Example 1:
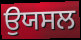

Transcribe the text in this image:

ਉਯਸਲ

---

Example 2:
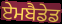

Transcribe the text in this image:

ਏਮਬੈਡੇਡ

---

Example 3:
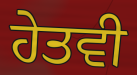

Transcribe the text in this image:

ਹੇਤਵੀ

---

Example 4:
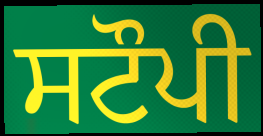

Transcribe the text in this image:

ਸਟੌਪੀ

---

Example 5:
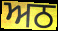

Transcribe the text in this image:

ਅਠ